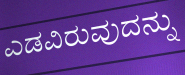
ಎಡವಿರುವುದನ್ನು